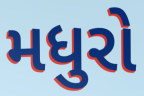
મધુરો